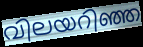
വിലയറിഞ്ഞ